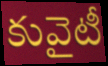
కువైటీ